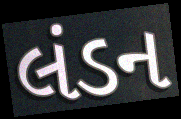
લંડન